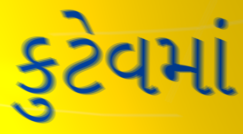
કુટેવમાં